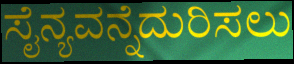
ಸೈನ್ಯವನ್ನೆದುರಿಸಲು